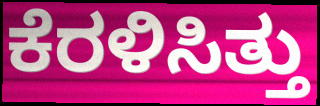
ಕೆರಳಿಸಿತ್ತು